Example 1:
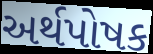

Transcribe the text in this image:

અર્થપોષક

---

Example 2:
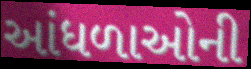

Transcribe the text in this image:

આંધળાઓની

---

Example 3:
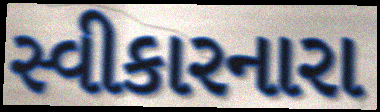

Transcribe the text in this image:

સ્વીકારનારા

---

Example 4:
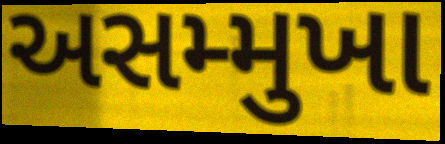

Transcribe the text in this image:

અસમ્મુખા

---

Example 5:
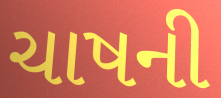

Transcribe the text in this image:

ચાષની